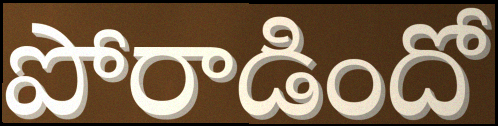
పోరాడిందో